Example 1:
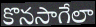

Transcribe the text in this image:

కొనసాగేలా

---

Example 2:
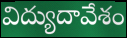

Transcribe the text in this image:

విద్యుదావేశం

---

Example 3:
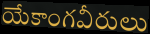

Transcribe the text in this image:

యేకాంగవీరులు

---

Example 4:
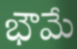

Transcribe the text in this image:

భౌమే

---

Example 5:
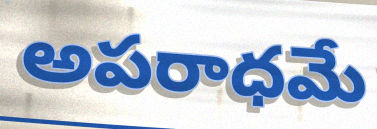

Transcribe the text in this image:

అపరాధమే